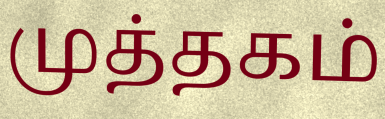
முத்தகம்